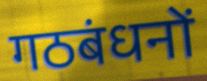
गठबंधनों